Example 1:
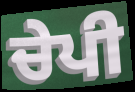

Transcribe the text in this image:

ਚੇਪੀ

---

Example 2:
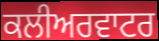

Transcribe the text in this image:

ਕਲੀਅਰਵਾਟਰ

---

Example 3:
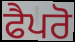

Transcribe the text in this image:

ਫੈਪਰੋ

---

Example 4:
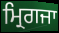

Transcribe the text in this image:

ਮ੍ਰਿਗਜਾ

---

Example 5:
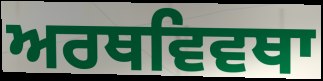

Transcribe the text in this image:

ਅਰਥਵਿਵਥਾ